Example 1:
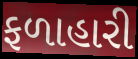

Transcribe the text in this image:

ફળાહારી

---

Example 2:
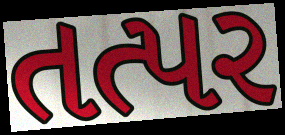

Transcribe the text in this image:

તત્પર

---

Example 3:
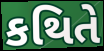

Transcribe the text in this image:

કથિતે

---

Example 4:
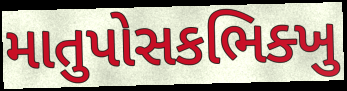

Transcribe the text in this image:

માતુપોસકભિક્ખુ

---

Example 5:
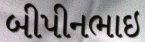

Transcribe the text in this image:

બીપીનભાઇ